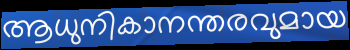
ആധുനികാനന്തരവുമായ